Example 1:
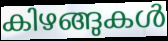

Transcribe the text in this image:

കിഴങ്ങുകൾ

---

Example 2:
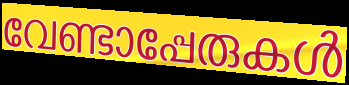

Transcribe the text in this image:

വേണ്ടാപ്പേരുകൾ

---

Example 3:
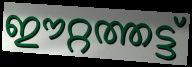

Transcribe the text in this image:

ഈറ്റത്തട്ട്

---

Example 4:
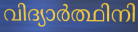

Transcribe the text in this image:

വിദ്യാർത്ഥിനി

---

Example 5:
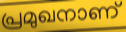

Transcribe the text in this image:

പ്രമുഖനാണ്